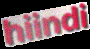
hiindi